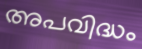
അപവിദ്ധം